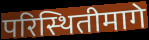
परिस्थितीमागे